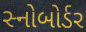
સ્નોબોર્ડર